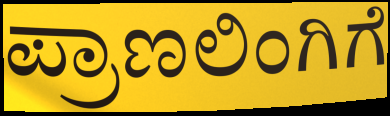
ಪ್ರಾಣಲಿಂಗಿಗೆ